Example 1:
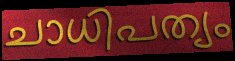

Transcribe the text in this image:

ചാധിപത്യം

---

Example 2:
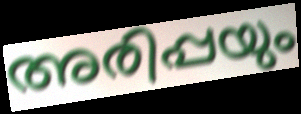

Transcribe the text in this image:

അരിപ്പയും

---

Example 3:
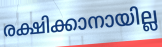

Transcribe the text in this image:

രക്ഷിക്കാനായില്ല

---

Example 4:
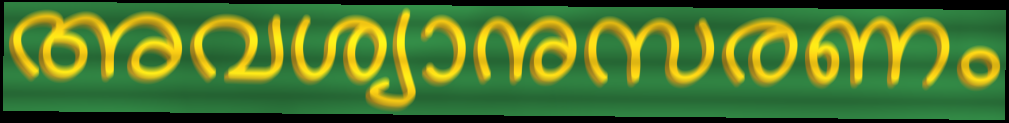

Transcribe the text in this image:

അവശ്യാനുസരണം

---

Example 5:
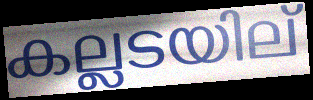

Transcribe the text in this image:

കല്ലടയില്